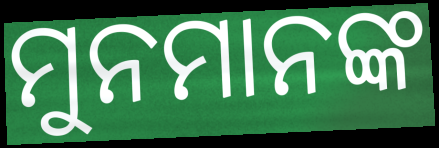
ମୁନମାନଙ୍କ